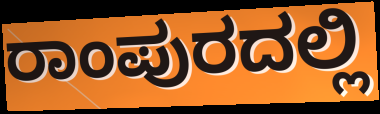
ರಾಂಪುರದಲ್ಲಿ